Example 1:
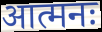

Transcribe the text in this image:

आत्मनः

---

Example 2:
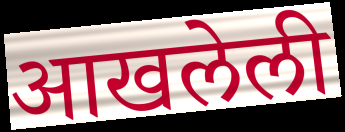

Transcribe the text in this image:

आखलेली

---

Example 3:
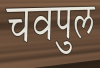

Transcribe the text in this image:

चवपुल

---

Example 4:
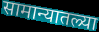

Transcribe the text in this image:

सामान्यातल्या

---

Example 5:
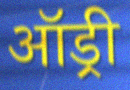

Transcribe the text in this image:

ऑड्री